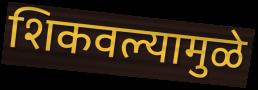
शिकवल्यामुळे